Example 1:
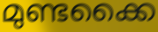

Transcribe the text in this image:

മുണ്ടക്കൈ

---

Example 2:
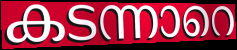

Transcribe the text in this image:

കടന്നാറെ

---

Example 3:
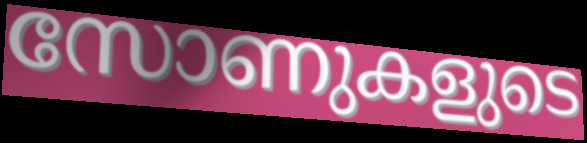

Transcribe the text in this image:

സോണുകളുടെ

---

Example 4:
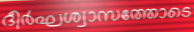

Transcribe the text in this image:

ദീർഘശ്വാസത്തോടെ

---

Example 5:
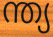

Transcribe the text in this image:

ന്ത്യ